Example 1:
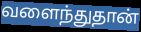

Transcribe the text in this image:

வளைந்துதான்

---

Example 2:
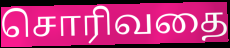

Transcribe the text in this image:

சொரிவதை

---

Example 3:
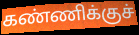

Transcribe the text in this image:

கண்ணிக்குச்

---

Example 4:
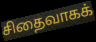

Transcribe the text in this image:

சிதைவாகக்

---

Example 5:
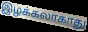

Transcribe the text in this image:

இழக்கலாகாது